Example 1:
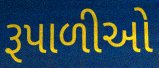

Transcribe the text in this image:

રૂપાળીઓ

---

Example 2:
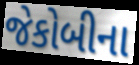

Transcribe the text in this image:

જેકોબીના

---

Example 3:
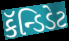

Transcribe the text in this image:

કૅન્ડિડેટ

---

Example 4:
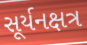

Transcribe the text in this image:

સૂર્યનક્ષત્ર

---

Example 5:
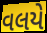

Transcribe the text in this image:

વલયે